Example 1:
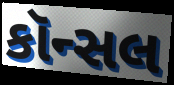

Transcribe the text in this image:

કૉન્સલ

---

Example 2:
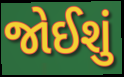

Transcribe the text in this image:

જોઈશું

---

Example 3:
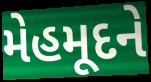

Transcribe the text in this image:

મેહમૂદને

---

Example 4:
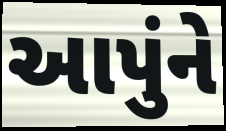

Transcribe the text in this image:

આપુંને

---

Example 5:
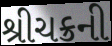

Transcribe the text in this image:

શ્રીચક્રની